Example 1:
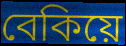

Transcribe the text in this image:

বেকিয়ে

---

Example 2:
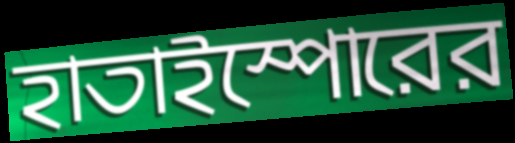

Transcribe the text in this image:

হাতাইস্পোরের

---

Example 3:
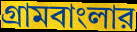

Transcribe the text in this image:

গ্রামবাংলার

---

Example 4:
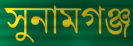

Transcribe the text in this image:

সুনামগঞ্জ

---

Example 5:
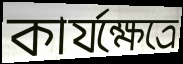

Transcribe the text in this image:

কার্যক্ষেত্রে